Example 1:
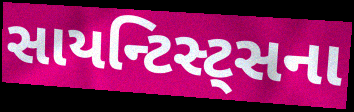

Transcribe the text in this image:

સાયન્ટિસ્ટ્સના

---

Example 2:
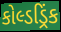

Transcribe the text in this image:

કોલ્ડડ્રિંક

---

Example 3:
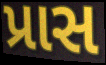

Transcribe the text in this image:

પ્રાસ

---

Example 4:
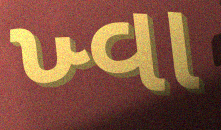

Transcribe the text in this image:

ખ્વા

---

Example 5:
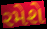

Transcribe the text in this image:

રમેશે